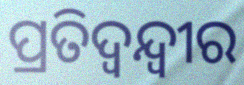
ପ୍ରତିଦ୍ବନ୍ଦ୍ବୀର